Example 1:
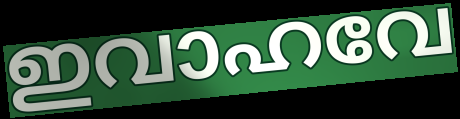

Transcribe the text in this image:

ഇവാഹവേ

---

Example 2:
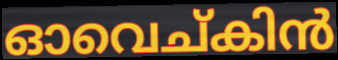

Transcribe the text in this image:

ഓവെച്കിൻ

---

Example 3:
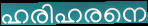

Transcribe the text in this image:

ഹരിഹരനെ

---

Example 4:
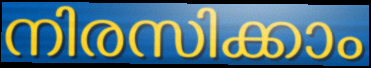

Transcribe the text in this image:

നിരസിക്കാം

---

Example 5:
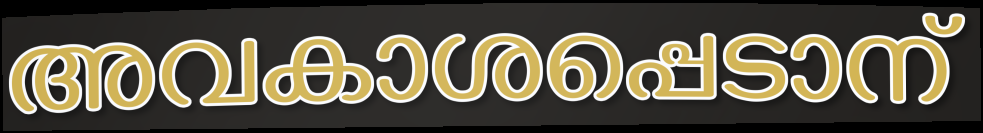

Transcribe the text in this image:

അവകാശപ്പെടാന്